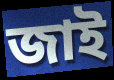
জাই